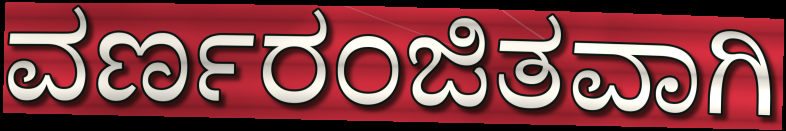
ವರ್ಣರಂಜಿತವಾಗಿ